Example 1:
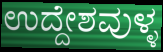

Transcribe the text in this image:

ಉದ್ದೇಶವುಳ್ಳ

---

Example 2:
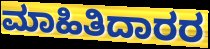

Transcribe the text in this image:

ಮಾಹಿತಿದಾರರ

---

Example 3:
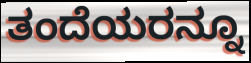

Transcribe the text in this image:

ತಂದೆಯರನ್ನೂ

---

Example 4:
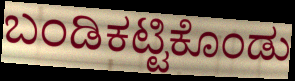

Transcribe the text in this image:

ಬಂಡಿಕಟ್ಟಿಕೊಂಡು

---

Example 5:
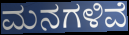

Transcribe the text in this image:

ಮನಗಳಿವೆ